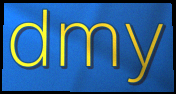
dmy